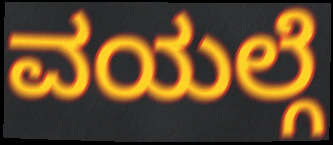
ವಯಲ್ಗೆ